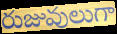
రుజువులుగా